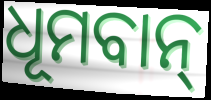
ଧୂମବାନ୍